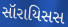
સૉરાયિસસ